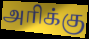
அரிக்கு